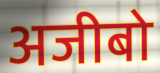
अजीबो